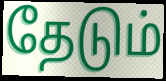
தேடும்